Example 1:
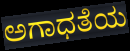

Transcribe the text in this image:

ಅಗಾಧತೆಯ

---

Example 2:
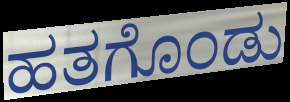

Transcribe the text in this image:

ಹತಗೊಂಡು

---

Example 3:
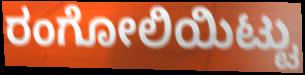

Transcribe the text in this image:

ರಂಗೋಲಿಯಿಟ್ಟು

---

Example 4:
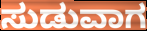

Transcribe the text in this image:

ಸುಡುವಾಗ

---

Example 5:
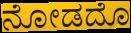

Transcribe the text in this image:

ನೋಡದೊ